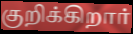
குறிக்கிறார்